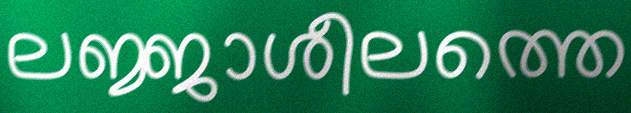
ലജ്ജാശീലത്തെ